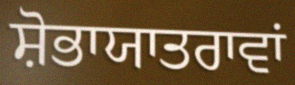
ਸ਼ੋਭਾਯਾਤਰਾਵਾਂ